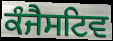
ਕੰਜੈਸਟਿਵ